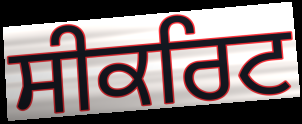
ਸੀਕਰਿਟ